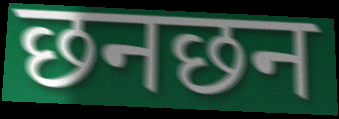
छनछन